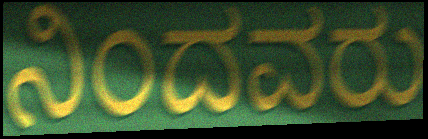
ನಿಂದವರು